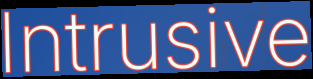
Intrusive